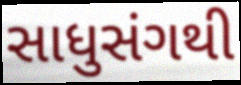
સાધુસંગથી